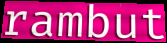
rambut